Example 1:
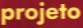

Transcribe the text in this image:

projeto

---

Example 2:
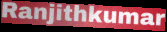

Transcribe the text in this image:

Ranjithkumar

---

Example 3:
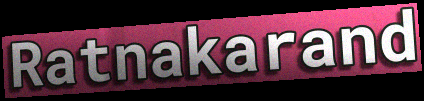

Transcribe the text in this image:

Ratnakarand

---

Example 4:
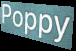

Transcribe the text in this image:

Poppy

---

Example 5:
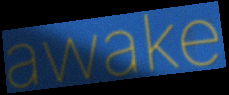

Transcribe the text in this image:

awake